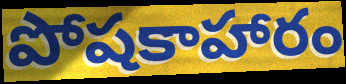
పోషకాహారం